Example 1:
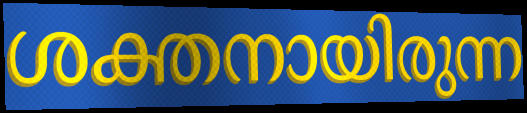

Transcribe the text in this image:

ശക്തനായിരുന്ന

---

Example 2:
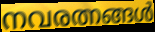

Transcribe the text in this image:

നവരത്നങ്ങൾ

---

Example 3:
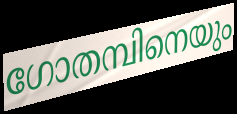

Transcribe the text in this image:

ഗോതമ്പിനെയും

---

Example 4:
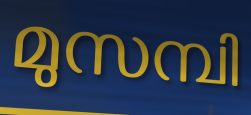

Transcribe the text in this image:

മുസമ്പി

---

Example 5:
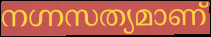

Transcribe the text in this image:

നഗ്നസത്യമാണ്